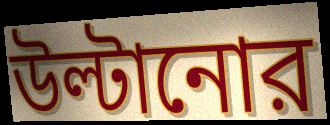
উল্টানোর